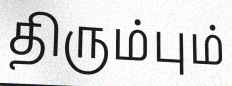
திரும்பும்